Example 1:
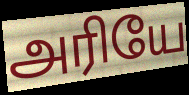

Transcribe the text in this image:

அரியே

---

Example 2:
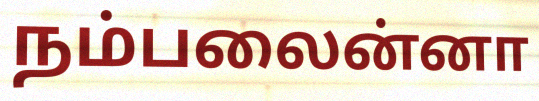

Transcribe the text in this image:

நம்பலைன்னா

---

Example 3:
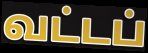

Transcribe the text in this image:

வட்டப்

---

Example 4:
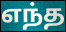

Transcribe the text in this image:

எந்த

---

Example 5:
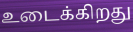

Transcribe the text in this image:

உடைக்கிறது